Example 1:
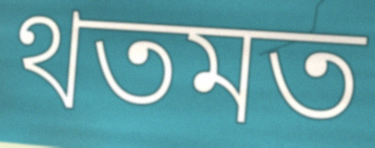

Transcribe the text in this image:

থতমত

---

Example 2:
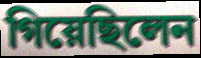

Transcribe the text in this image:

গিয়েছিলেন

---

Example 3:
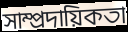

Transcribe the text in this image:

সাম্প্রদায়িকতা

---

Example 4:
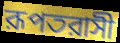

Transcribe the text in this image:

রূপতরাসী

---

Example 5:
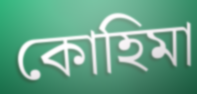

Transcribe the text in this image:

কোহিমা